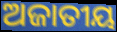
ଅଜାତୀୟ